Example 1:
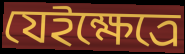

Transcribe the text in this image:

যেইক্ষেত্রে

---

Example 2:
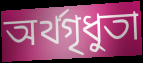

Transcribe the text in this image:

অর্থগৃধুতা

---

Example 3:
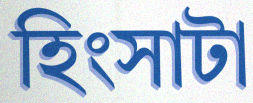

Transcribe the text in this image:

হিংসাটা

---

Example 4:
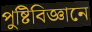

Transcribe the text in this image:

পুষ্টিবিজ্ঞানে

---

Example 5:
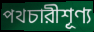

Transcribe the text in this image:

পথচারীশূণ্য